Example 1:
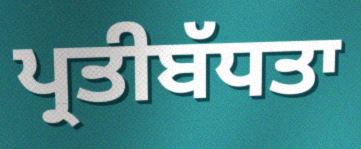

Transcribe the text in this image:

ਪ੍ਰਤੀਬੱਧਤਾ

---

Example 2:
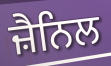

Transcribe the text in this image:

ਜ਼ੈਨਿਲ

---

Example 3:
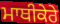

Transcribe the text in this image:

ਮਾਥੀਕੇਰੇ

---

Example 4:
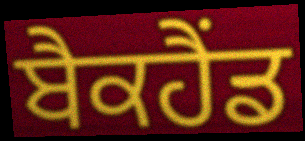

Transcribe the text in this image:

ਬੈਕਹੈਂਡ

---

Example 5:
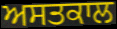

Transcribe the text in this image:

ਅਸਤਕਾਲ